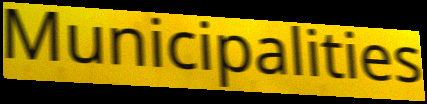
Municipalities